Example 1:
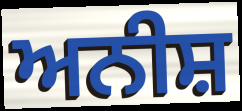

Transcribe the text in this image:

ਅਨੀਸ਼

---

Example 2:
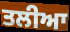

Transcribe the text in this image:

ਤਲੀਆ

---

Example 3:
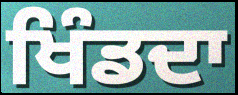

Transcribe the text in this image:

ਖਿੰਡਦਾ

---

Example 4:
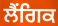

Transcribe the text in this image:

ਲੈਂਗਿਕ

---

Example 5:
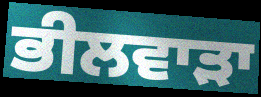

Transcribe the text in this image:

ਭੀਲਵਾੜਾ